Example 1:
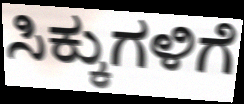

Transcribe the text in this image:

ಸಿಕ್ಕುಗಳಿಗೆ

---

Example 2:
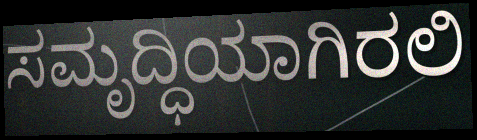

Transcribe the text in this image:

ಸಮೃದ್ಧಿಯಾಗಿರಲಿ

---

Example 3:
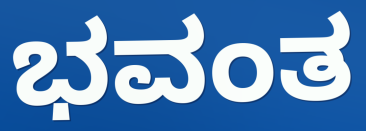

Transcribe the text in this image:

ಭವಂತ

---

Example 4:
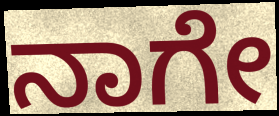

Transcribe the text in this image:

ನಾಗೇ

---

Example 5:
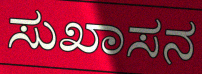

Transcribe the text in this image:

ಸುಖಾಸನ